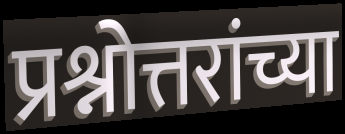
प्रश्नोत्तरांच्या